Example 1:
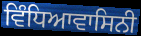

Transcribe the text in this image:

ਵਿੰਧਿਆਵਾਸਿਨੀ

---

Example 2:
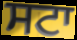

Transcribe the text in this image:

ਸਟਾ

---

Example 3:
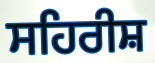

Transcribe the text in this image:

ਸਹਿਰੀਸ਼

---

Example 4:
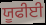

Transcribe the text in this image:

ਯੂਫੀਈ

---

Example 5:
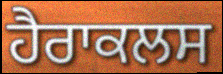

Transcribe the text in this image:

ਹੈਰਾਕਲਸ